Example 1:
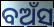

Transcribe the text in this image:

ବଅଁସ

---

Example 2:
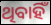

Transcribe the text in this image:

ଥିବାହିଁ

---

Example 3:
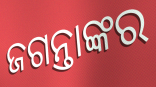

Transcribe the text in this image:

ଜଗନ୍ତାଙ୍କର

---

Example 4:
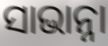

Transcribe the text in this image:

ସାଭାନ୍ନା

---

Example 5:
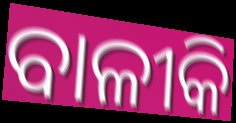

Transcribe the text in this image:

ବାଳୀକି